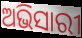
ଅଭିସାରୀ